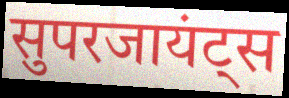
सुपरजायंट्स